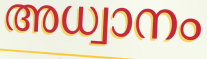
അധ്വാനം